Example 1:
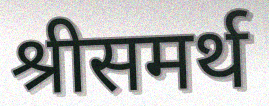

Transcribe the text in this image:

श्रीसमर्थ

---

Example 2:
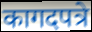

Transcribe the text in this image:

कागदपत्रे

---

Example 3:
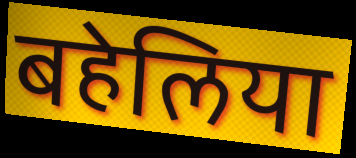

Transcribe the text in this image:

बहेलिया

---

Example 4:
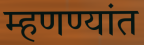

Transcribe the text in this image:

म्हणण्यांत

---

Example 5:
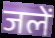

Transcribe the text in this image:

जलें